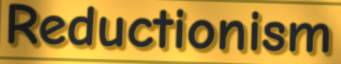
Reductionism